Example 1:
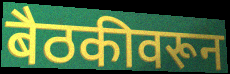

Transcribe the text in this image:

बैठकीवरून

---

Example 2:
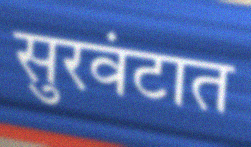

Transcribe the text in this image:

सुरवंटात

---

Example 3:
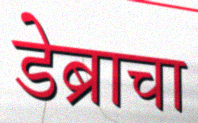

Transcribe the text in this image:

डेब्राचा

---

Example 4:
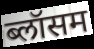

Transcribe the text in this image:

ब्लॉसम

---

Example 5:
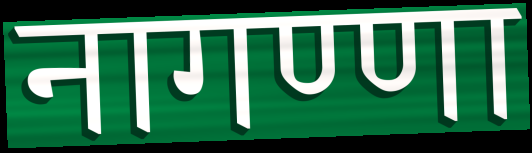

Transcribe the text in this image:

नागण्णा